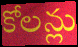
కోలన్లు